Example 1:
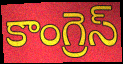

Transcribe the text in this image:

కాంగ్రెస్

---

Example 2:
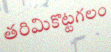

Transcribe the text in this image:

తరిమికొట్టగలం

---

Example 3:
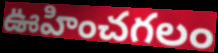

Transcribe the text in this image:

ఊహించగలం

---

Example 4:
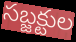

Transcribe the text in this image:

సబ్జక్టుల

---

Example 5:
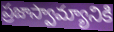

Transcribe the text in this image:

ప్రజాస్వామ్యానికి